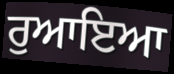
ਰੁਆਇਆ